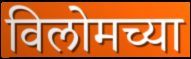
विलोमच्या